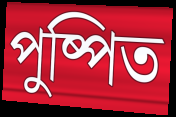
পুষ্পিত